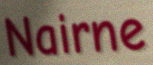
Nairne